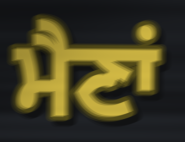
ਮੈਣਾਂ